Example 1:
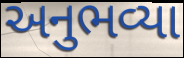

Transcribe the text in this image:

અનુભવ્યા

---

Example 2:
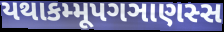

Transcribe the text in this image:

યથાકમ્મૂપગઞાણસ્સ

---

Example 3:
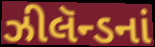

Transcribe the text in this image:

ઝીલૅન્ડનાં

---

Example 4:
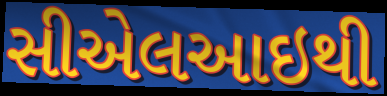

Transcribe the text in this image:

સીએલઆઇથી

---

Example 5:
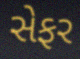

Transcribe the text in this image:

સેફર